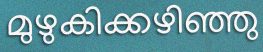
മുഴുകിക്കഴിഞ്ഞു